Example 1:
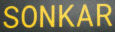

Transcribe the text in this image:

SONKAR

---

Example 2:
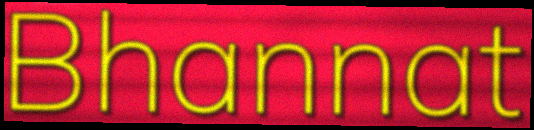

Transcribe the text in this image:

Bhannat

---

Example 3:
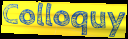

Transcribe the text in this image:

Colloquy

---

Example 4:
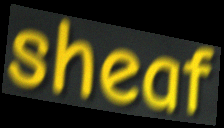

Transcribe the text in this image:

sheaf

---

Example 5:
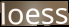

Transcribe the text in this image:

loess